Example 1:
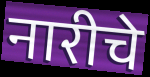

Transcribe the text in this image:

नारीचे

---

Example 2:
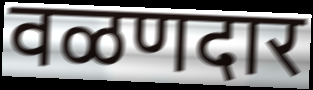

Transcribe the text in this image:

वळणदार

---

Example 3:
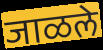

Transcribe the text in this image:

जाळले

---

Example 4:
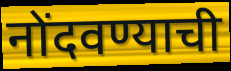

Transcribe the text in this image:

नोंदवण्याची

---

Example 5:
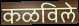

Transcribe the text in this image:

कळविले